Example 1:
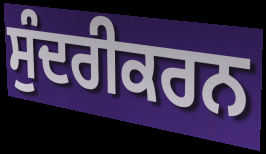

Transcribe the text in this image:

ਸੁੰਦਰੀਕਰਨ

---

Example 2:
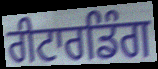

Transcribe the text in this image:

ਰੀਟਾਰਡਿੰਗ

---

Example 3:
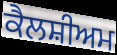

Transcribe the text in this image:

ਕੈਲਸ਼ੀਅਮ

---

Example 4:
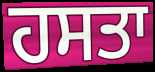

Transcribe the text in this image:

ਹਸਤਾ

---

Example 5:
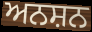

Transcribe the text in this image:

ਅਨਸ਼ਨ